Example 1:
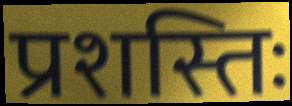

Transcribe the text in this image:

प्रशस्तिः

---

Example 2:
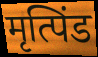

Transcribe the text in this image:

मृत्पिंड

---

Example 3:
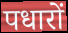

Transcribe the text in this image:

पधारों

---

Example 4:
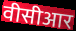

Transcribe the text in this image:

वीसीआर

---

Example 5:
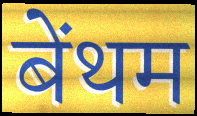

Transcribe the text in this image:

बेंथम